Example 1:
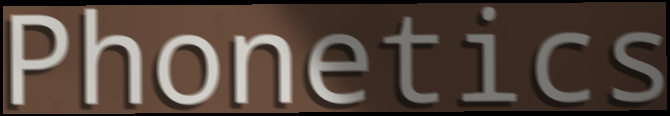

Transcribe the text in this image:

Phonetics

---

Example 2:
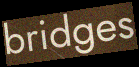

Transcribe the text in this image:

bridges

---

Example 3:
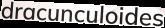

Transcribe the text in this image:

dracunculoides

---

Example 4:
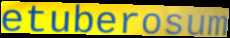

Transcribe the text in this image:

etuberosum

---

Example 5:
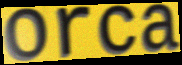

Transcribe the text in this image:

orca